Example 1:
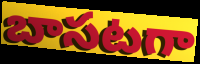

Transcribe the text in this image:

బాసటగా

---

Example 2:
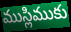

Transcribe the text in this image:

ముస్లిముకు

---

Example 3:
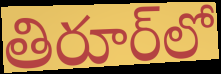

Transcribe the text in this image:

తిరూర్‌లో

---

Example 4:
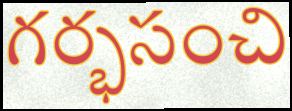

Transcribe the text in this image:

గర్భసంచి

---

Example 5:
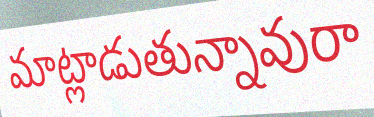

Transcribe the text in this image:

మాట్లాడుతున్నావురా